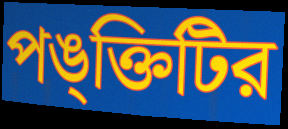
পঙ্‌ক্তিটির